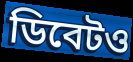
ডিবেটও